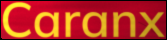
Caranx